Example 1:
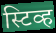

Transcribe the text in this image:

स्टिव्ह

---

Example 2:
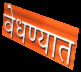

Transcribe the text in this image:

वेधण्यात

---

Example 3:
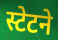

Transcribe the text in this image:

स्टेटने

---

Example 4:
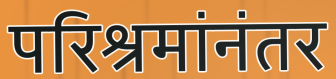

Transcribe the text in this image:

परिश्रमांनंतर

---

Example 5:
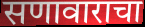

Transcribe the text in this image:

सणावाराचा